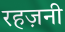
रहज़नी